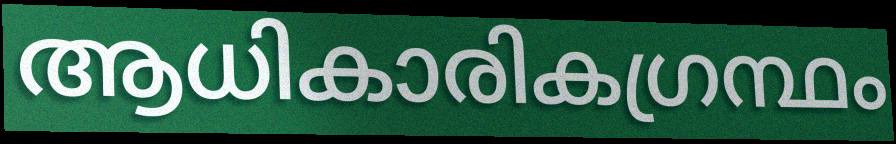
ആധികാരികഗ്രന്ഥം